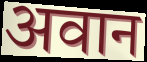
अवान